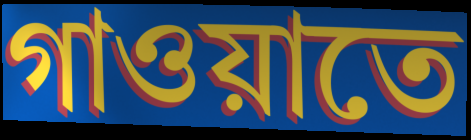
গাওয়াতে